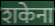
शकेना